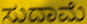
ಸುದಾಮೆ